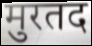
मुरतद